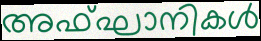
അഫ്ഘാനികൾ